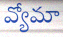
వ్యోమా